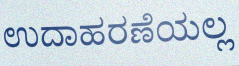
ಉದಾಹರಣೆಯಲ್ಲ